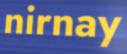
nirnay